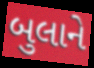
બુલાને